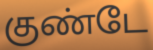
குண்டே